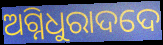
ଅଗ୍ନିଧୁରାଦଦେ